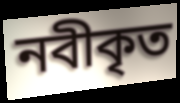
নবীকৃত